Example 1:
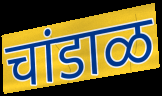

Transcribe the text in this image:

चांडाळ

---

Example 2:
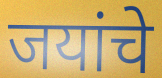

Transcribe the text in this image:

जयांचे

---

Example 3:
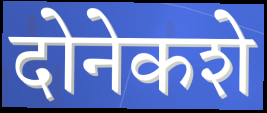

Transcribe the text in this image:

दोनेकशे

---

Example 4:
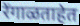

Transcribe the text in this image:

रेंगाळताहेत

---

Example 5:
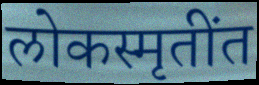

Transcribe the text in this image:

लोकस्मृतींत